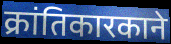
क्रांतिकारकाने